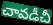
చావడీచీ